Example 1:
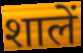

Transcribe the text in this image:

शालें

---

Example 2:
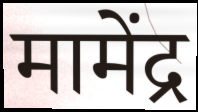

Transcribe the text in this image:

मामेंद्र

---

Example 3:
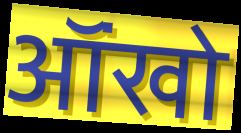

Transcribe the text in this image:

ऑंखो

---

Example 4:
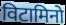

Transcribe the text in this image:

विटामिनो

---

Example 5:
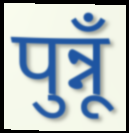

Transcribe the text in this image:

पुन्नूँ